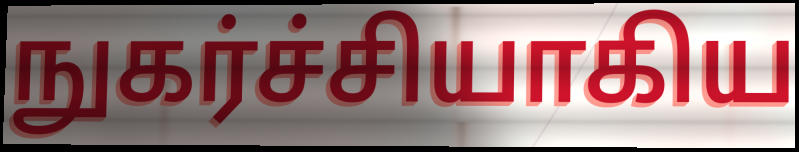
நுகர்ச்சியாகிய